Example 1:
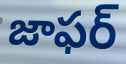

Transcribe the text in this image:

జాఫర్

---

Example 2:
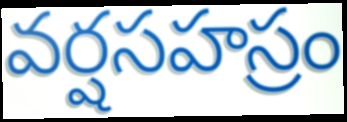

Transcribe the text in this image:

వర్షసహస్రం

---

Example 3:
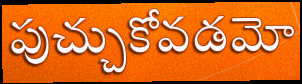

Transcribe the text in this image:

పుచ్చుకోవడమో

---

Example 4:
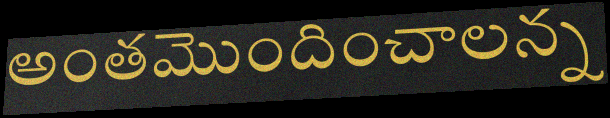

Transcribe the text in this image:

అంతమొందించాలన్న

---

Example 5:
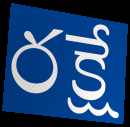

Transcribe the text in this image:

రక్షే